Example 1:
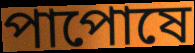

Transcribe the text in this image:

পাপোষে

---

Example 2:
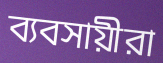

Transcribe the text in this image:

ব্যবসায়ীরা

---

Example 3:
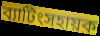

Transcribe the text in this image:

ব্যাটিংসহায়ক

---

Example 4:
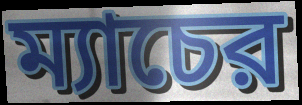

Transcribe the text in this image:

ম্যাচের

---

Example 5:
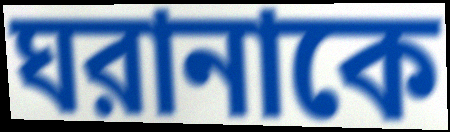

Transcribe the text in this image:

ঘরানাকে